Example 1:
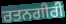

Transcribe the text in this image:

ਰਤਨਗੀਰੀ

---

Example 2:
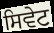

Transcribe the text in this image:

ਸਿਵੇਟ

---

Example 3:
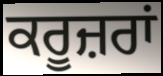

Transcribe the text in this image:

ਕਰੂਜ਼ਰਾਂ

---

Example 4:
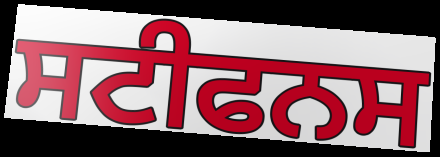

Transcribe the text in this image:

ਸਟੀਫਨਸ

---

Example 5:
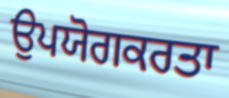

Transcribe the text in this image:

ਉਪਯੋਗਕਰਤਾ